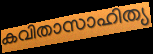
കവിതാസാഹിത്യ